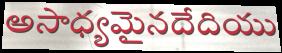
అసాధ్యమైనదేదియు